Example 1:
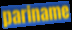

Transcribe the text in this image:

pariname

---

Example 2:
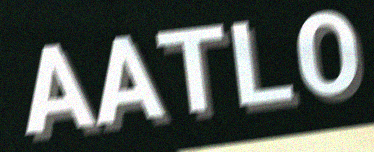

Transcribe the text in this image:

AATLO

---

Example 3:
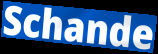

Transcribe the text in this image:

Schande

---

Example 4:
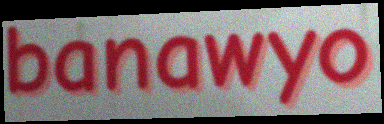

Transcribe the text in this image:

banawyo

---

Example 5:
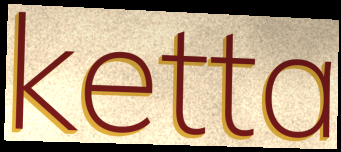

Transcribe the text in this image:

ketta